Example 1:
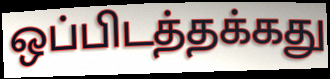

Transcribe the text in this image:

ஒப்பிடத்தக்கது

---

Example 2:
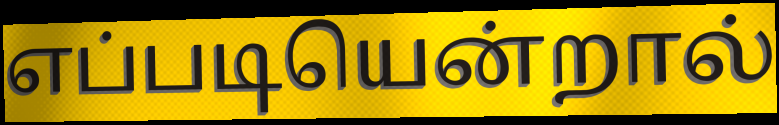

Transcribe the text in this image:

எப்படியென்றால்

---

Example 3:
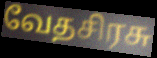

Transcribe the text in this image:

வேதசிரசு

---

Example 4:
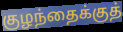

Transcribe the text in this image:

குழந்தைக்குத்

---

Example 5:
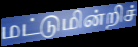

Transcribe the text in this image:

மட்டுமின்றிச்